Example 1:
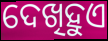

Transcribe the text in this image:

ଦେଖିହୁଏ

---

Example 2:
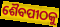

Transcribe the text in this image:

ଶୈବପୀଠକୁ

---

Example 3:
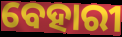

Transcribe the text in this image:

ବେହାରୀ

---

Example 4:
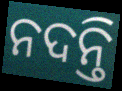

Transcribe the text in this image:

ନଦନ୍ତି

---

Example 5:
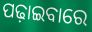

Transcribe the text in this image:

ପଢ଼ାଇବାରେ